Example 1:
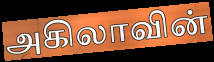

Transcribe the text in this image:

அகிலாவின்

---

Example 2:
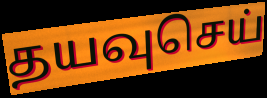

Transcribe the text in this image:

தயவுசெய்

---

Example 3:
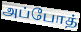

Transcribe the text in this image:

அப்போத்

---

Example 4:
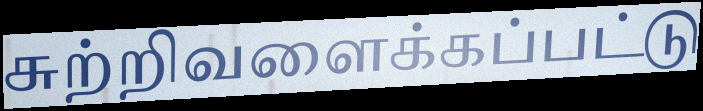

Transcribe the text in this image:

சுற்றிவளைக்கப்பட்டு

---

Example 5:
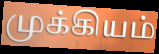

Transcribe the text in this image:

முக்கியம்